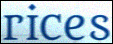
rices